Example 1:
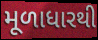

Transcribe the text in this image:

મૂળાધારથી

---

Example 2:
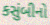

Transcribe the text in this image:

કસુંબીનો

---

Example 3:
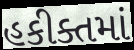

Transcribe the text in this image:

હકીક્તમાં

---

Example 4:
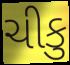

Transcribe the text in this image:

ચીકુ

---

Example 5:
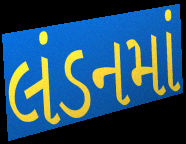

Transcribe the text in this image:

લંડનમાં